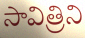
సావిత్రిని